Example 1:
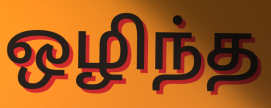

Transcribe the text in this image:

ஒழிந்த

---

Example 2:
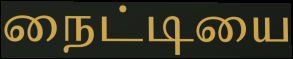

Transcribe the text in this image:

நைட்டியை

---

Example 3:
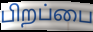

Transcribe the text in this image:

பிறப்பை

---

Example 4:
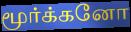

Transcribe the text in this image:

மூர்க்கனோ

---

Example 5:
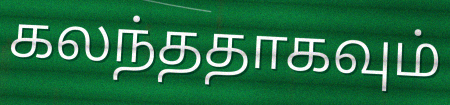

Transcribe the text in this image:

கலந்ததாகவும்